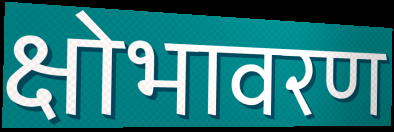
क्षोभावरण